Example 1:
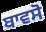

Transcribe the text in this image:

ਬਾਵਸੋ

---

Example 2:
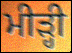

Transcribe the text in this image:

ਮੀੜ੍ਹੀ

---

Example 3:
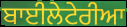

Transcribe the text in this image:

ਬਾਈਲੇਟੇਰੀਆ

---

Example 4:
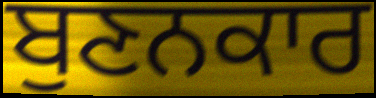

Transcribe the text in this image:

ਬੁਣਨਕਾਰ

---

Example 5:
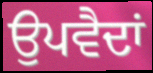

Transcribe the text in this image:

ਉਪਵੈਦਾਂ